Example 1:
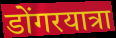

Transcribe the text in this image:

डोंगरयात्रा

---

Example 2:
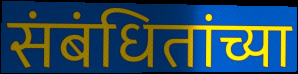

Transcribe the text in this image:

संबंधितांच्या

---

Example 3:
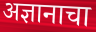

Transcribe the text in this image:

अज्ञानाचा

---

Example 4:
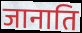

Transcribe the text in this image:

जानाति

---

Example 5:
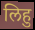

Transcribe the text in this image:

लिहु